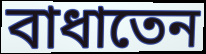
বাধাতেন